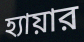
হ্যায়ার